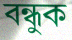
বন্ধুক